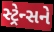
સ્ટ્રેન્સને